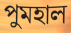
পুমহাল